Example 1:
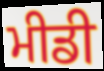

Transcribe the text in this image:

ਮੀਡੀ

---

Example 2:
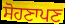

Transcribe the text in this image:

ਸੋਹਣਾਪਣ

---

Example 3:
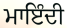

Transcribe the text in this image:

ਮਾਇੰਦੀ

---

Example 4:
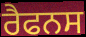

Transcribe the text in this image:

ਰੈਫਨਸ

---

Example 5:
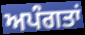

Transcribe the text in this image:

ਅਪੰਗਤਾਂ